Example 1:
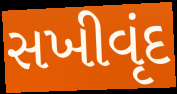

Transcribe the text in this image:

સખીવૃંદ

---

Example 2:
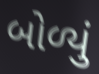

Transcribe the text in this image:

બોળ્યું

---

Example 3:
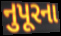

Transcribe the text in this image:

નુપૂરના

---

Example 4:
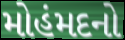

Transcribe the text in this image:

મોહંમદનો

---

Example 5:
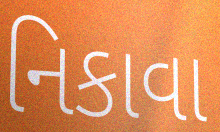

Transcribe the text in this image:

નિકાવા